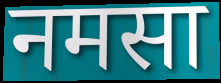
नमसा